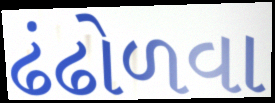
ઢંઢોળવા